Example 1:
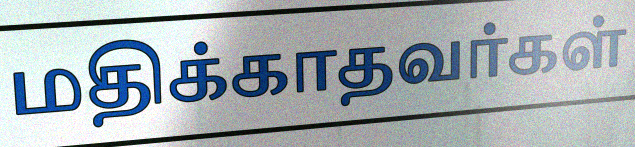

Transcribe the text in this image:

மதிக்காதவர்கள்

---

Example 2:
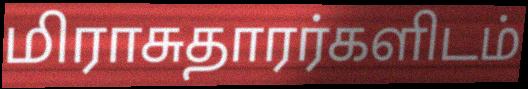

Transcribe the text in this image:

மிராசுதாரர்களிடம்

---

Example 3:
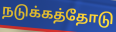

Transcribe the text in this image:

நடுக்கத்தோடு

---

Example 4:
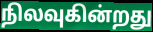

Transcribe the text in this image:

நிலவுகின்றது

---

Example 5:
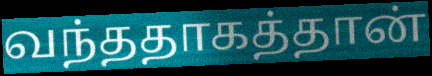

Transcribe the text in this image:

வந்ததாகத்தான்